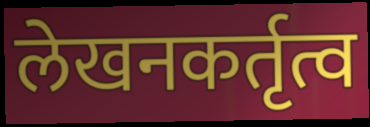
लेखनकर्तृत्व